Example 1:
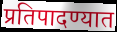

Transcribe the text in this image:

प्रतिपादण्यात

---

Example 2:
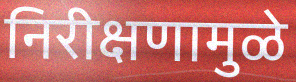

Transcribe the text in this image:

निरीक्षणामुळे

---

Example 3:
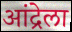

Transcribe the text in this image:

आंद्रेला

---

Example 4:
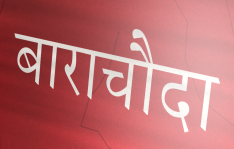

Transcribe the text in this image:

बाराचौदा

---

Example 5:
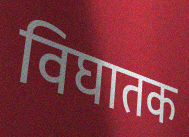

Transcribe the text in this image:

विघातक